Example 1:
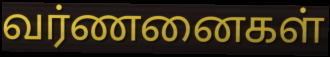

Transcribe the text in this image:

வர்ணனைகள்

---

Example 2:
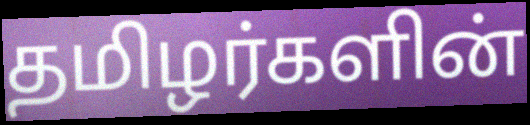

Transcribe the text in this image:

தமிழர்களின்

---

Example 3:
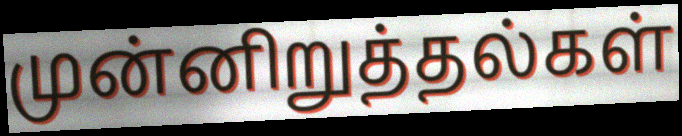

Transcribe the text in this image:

முன்னிறுத்தல்கள்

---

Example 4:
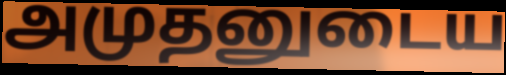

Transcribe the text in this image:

அமுதனுடைய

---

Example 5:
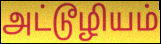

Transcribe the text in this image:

அட்டூழியம்